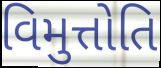
વિમુત્તોતિ